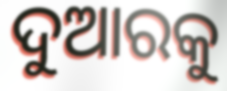
ଦୁଆରକୁ